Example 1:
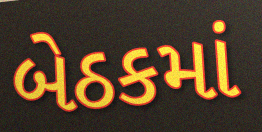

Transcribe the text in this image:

બેઠકમાં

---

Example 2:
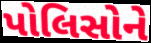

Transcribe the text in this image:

પોલિસોને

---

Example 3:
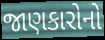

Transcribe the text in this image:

જાણકારોનો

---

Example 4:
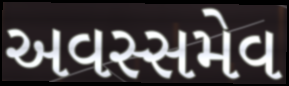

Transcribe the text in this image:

અવસ્સમેવ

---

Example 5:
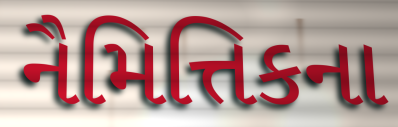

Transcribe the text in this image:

નૈમિત્તિકના